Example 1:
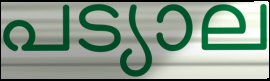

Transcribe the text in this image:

പട്യാല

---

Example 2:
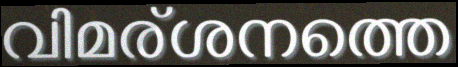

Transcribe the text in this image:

വിമര്ശനത്തെ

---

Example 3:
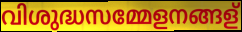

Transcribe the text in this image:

വിശുദ്ധസമ്മേളനങ്ങള്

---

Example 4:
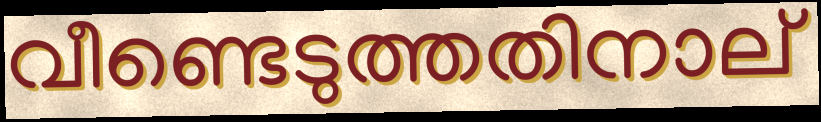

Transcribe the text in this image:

വീണ്ടെടുത്തതിനാല്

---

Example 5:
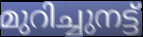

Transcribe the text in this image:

മുറിച്ചുനട്ട്